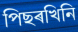
পিছৰখিনি